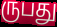
ருபது